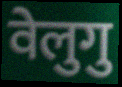
वेलुगु